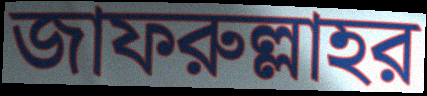
জাফরুল্লাহর